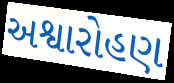
અશ્વારોહણ